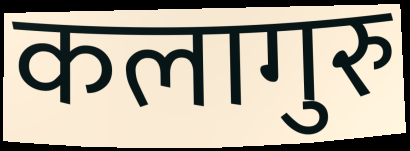
कलागुरु